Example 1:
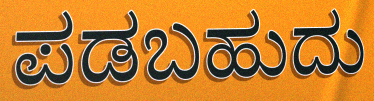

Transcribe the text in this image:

ಪಡಬಹುದು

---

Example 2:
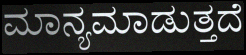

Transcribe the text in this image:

ಮಾನ್ಯಮಾಡುತ್ತದೆ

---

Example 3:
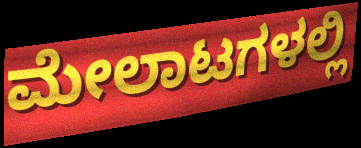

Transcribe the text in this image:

ಮೇಲಾಟಗಳಲ್ಲಿ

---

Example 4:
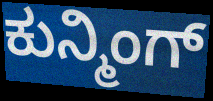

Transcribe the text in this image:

ಕುನ್ಮಿಂಗ್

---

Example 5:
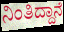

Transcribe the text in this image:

ನಿಂತಿದ್ದಾನೆ